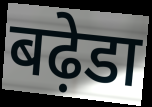
बढ़ेडा